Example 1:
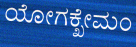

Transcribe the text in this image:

ಯೋಗಕ್ಖೇಮಂ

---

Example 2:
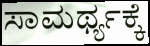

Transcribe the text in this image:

ಸಾಮರ್ಥ್ಯಕ್ಕೆ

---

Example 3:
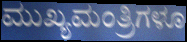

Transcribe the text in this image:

ಮುಖ್ಯಮಂತ್ರಿಗಳೂ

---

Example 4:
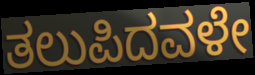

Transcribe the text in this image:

ತಲುಪಿದವಳೇ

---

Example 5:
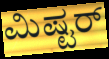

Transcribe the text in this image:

ಮಿಷ್ಟರ್